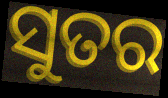
ସୁତର